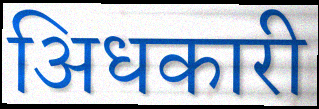
अिधकारी